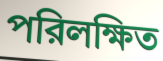
পরিলক্ষিত